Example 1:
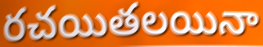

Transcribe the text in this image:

రచయితలయినా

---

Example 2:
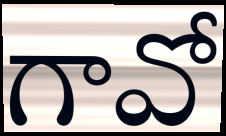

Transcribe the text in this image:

గావో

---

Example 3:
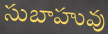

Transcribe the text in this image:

సుబాహువు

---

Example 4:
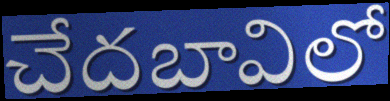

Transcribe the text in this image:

చేదబావిలో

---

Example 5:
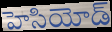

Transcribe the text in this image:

హెసియోడ్